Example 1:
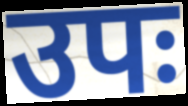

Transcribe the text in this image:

उपः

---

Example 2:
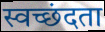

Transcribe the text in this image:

स्वच्छंदता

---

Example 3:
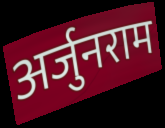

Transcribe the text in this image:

अर्जुनराम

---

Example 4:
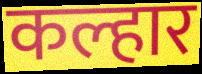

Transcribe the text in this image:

कल्हार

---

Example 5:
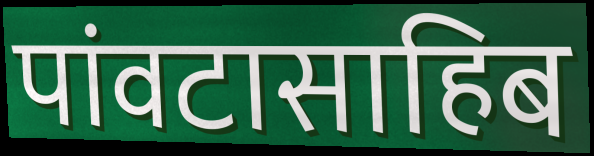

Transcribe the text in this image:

पांवटासाहिब